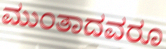
ಮುಂತಾದವರೂ